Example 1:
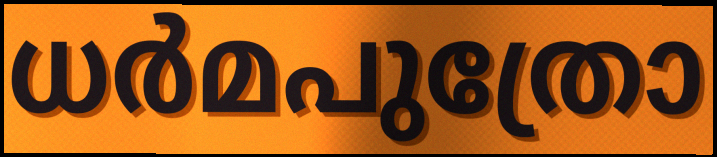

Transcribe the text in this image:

ധർമപുത്രോ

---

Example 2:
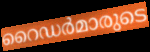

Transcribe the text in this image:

റൈഡർമാരുടെ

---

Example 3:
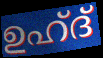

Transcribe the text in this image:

ഉഹ്ദ്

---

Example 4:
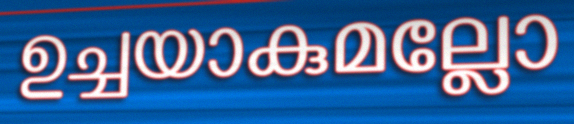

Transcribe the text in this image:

ഉച്ചയാകുമല്ലോ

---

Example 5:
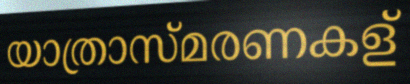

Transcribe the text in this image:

യാത്രാസ്മരണകള്